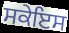
ਸਕੇਇਸ